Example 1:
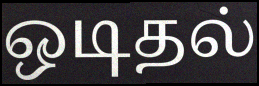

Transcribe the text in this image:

ஒடிதல்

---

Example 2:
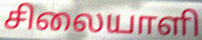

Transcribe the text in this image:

சிலையாளி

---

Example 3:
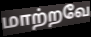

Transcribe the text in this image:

மாற்றவே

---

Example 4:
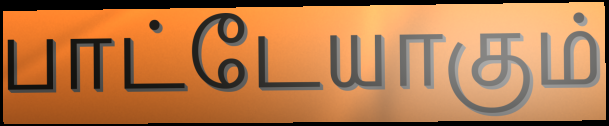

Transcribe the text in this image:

பாட்டேயாகும்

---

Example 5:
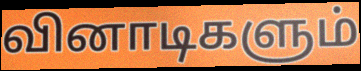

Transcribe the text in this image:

வினாடிகளும்